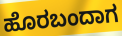
ಹೊರಬಂದಾಗ